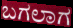
ಬಗಲಾಗ